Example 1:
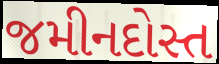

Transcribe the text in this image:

જમીનદોસ્ત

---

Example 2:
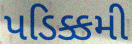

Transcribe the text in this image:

પડિક્કમી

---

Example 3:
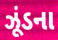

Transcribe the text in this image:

ઝૂંડના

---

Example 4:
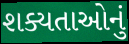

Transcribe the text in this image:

શક્યતાઓનું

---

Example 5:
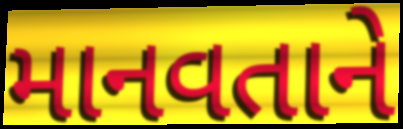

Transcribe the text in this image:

માનવતાને